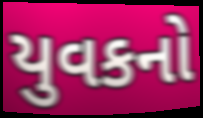
યુવકનો